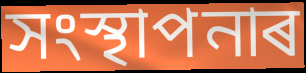
সংস্থাপনাৰ